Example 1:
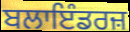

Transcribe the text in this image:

ਬਲਾਇੰਡਰਜ਼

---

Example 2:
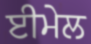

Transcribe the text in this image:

ਈਮੇਲ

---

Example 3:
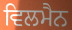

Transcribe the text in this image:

ਵਿਲਮੈਨ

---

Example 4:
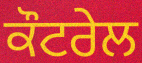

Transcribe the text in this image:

ਕੌਟਰੇਲ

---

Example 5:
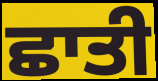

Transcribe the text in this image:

ਛਾਤੀ